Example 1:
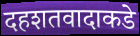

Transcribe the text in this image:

दहशतवादाकडे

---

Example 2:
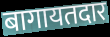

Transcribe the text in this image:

बागायतदार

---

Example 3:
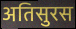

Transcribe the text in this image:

अतिसुरस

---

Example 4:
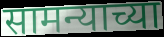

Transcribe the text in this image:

सामन्याच्या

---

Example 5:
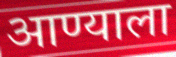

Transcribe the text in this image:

आण्याला